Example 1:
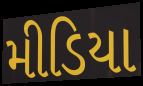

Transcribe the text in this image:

મીડિયા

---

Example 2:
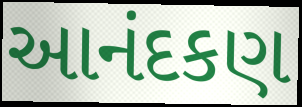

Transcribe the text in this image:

આનંદકણ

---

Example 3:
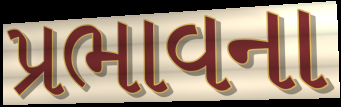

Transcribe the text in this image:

પ્રભાવના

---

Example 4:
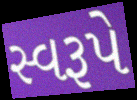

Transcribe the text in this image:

સ્વરૂપે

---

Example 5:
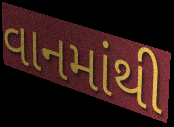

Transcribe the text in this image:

વાનમાંથી